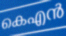
കെഎൻ